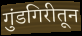
गुंडगिरीतून